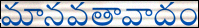
మానవతావాదం